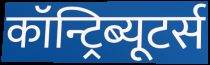
कॉन्ट्रिब्यूटर्स